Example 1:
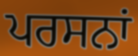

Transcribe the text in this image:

ਪਰਸਨਾਂ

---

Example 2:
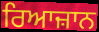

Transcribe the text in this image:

ਰਿਆਜ਼ਾਨ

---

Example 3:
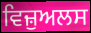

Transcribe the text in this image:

ਵਿਜ਼ੁਅਲਸ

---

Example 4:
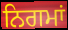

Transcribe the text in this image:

ਨਿਗਮਾਂ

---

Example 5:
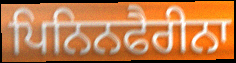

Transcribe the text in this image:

ਪਿਨਿਨਫੈਰੀਨਾ